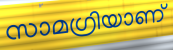
സാമഗ്രിയാണ്